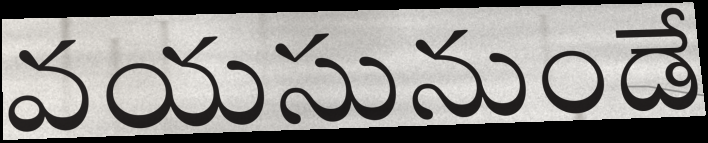
వయసునుండే